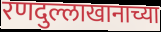
रणदुल्लाखानाच्या